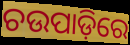
ଚଉପାଡ଼ିରେ